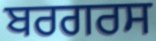
ਬਰਗਰਸ